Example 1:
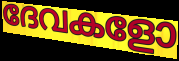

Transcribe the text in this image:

ദേവകളോ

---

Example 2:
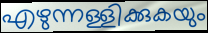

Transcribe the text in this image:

എഴുന്നള്ളിക്കുകയും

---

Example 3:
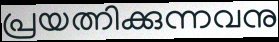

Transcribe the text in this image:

പ്രയത്നിക്കുന്നവനു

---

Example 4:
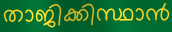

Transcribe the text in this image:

താജിക്കിസ്ഥാൻ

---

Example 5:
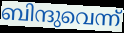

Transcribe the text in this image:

ബിന്ദുവെന്ന്